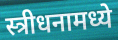
स्त्रीधनामध्ये